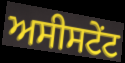
ਅਸੀਸਟੇਂਟ